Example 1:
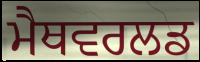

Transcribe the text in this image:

ਮੈਥਵਰਲਡ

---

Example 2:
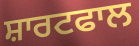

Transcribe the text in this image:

ਸ਼ਾਰਟਫਾਲ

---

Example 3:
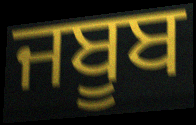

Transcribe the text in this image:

ਜਬੂਬ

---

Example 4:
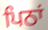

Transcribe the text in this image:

ਪਿਠਾਂ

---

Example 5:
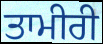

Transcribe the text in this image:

ਤਾਮੀਰੀ